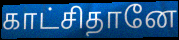
காட்சிதானே